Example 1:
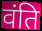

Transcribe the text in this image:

वंति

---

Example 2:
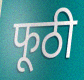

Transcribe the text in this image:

फूठी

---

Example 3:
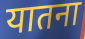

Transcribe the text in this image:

यातना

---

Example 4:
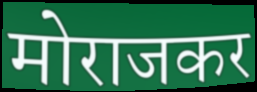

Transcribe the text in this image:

मोराजकर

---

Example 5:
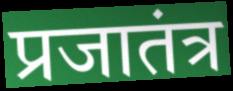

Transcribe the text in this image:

प्रजातंत्र